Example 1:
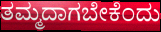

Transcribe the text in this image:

ತಮ್ಮದಾಗಬೇಕೆಂದು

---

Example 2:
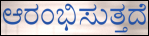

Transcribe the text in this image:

ಆರಂಭಿಸುತ್ತದೆ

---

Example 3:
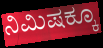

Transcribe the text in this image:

ನಿಮಿಷಕ್ಕೂ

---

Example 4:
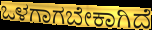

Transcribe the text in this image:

ಒಳಗಾಗಬೇಕಾಗಿದೆ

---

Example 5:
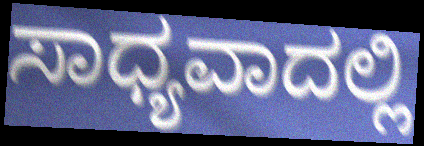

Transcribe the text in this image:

ಸಾಧ್ಯವಾದಲ್ಲಿ